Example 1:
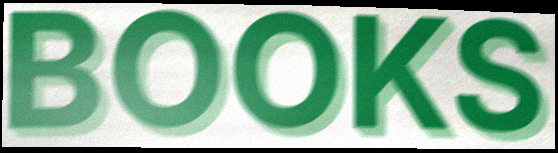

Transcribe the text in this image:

BOOKS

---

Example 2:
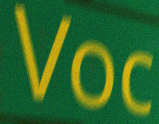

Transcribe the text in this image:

Voc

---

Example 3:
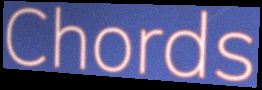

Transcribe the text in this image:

Chords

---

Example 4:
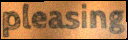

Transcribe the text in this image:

pleasing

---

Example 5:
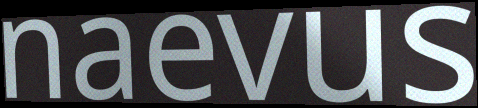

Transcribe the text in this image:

naevus